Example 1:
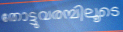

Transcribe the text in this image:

തോട്ടുവരമ്പിലൂടെ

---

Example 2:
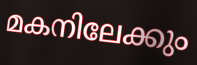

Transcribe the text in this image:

മകനിലേക്കും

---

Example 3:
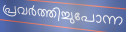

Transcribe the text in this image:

പ്രവർത്തിച്ചുപോന്ന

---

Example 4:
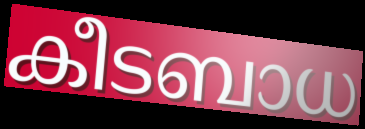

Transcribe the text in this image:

കീടബാധ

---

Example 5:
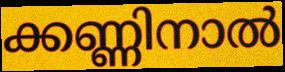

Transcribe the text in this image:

ക്കണ്ണിനാൽ